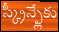
స్క్రీన్ప్లేకు